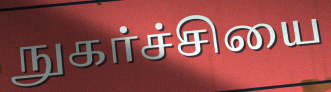
நுகர்ச்சியை